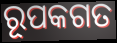
ରୂପକଗତ